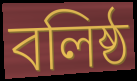
বলিষ্ঠ